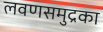
लवणसमुद्रका